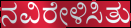
ನವಿರೇಳಿಸಿತು